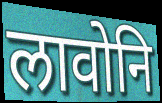
लावोनि